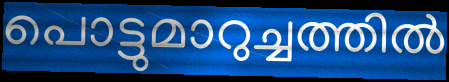
പൊട്ടുമാറുച്ചത്തിൽ